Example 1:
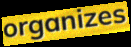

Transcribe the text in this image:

organizes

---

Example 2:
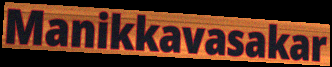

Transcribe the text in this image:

Manikkavasakar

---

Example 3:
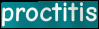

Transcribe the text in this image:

proctitis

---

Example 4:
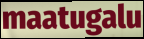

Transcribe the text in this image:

maatugalu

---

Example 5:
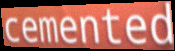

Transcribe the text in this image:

cemented